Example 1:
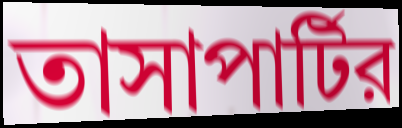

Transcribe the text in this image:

তাসাপার্টির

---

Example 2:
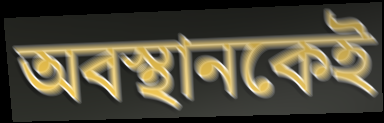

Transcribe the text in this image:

অবস্থানকেই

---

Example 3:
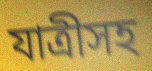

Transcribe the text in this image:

যাত্রীসহ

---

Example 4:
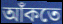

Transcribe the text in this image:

আঁকতে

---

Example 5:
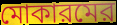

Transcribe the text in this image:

মোকারমের